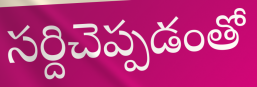
సర్దిచెప్పడంతో